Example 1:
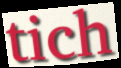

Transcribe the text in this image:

tich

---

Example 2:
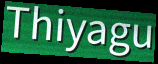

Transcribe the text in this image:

Thiyagu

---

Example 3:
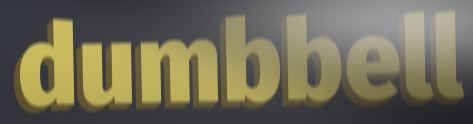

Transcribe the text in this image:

dumbbell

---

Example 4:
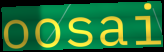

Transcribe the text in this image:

oosai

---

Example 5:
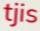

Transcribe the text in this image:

tjis